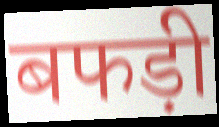
बफड़ी